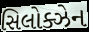
સિલોક્ઝેન